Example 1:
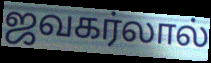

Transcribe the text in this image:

ஜவகர்லால்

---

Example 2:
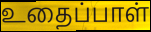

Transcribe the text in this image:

உதைப்பாள்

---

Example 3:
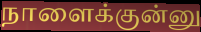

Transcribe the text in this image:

நாளைக்குன்னு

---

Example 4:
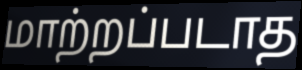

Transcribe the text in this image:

மாற்றப்படாத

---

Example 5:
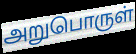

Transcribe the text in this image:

அறுபொருள்